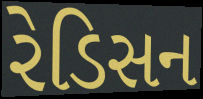
રેડિસન